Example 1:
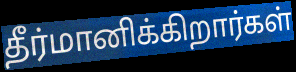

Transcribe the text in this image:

தீர்மானிக்கிறார்கள்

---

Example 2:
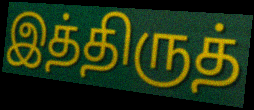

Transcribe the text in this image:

இத்திருத்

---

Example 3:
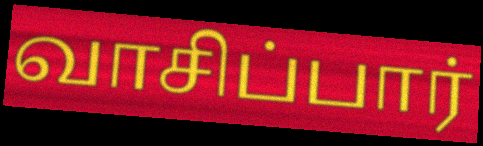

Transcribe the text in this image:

வாசிப்பார்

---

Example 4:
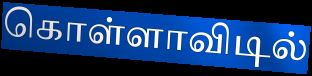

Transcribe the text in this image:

கொள்ளாவிடில்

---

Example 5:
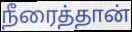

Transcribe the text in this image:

நீரைத்தான்